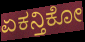
ಏಕನ್ತಿಕೋ